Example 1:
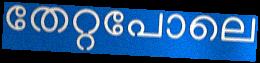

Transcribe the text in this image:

തേറ്റപോലെ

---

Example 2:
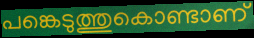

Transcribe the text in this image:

പങ്കെടുത്തുകൊണ്ടാണ്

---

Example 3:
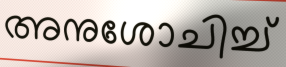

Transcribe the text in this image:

അനുശോചിച്ച്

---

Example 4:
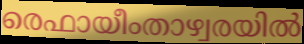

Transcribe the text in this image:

രെഫായീംതാഴ്വരയിൽ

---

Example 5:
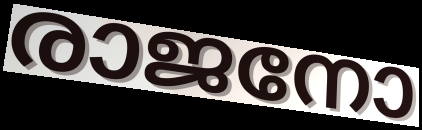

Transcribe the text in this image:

രാജനോ